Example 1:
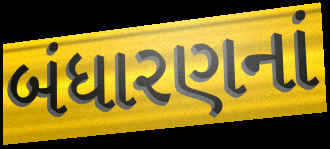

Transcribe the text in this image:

બંધારણનાં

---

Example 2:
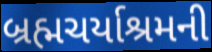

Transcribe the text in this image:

બ્રહ્મચર્યાશ્રમની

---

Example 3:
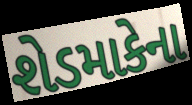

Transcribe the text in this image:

શેડમાકેના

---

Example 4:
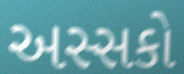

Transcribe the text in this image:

અસ્સકો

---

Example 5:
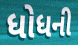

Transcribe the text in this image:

ધોધની